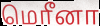
மெரீனா